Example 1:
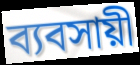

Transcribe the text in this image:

ব্যবসায়ী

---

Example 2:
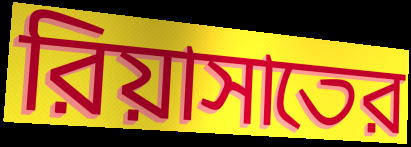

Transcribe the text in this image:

রিয়াসাতের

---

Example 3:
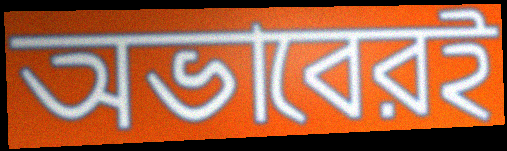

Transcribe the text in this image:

অভাবেরই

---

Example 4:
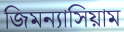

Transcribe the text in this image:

জিমন্যাসিয়াম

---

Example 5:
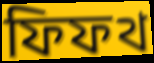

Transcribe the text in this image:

ফিফথ